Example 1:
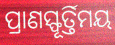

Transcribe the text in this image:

ପ୍ରାଣସ୍ଫୂର୍ତ୍ତିମୟ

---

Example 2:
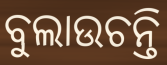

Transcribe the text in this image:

ବୁଲାଉଚନ୍ତି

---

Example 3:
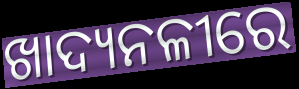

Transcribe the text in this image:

ଖାଦ୍ୟନଳୀରେ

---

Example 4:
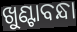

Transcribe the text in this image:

ଖୁଣ୍ଟାବନ୍ଧା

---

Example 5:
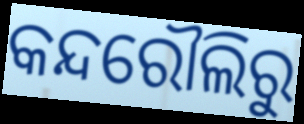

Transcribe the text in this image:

କନ୍ଦରୌଲିରୁ